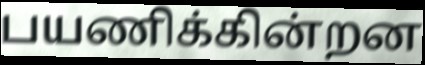
பயணிக்கின்றன